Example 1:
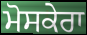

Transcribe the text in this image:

ਮੋਸਕੇਰਾ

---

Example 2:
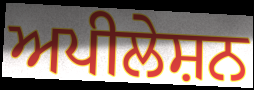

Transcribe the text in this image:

ਅਪੀਲੇਸ਼ਨ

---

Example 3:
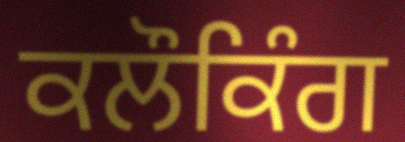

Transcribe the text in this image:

ਕਲੌਕਿੰਗ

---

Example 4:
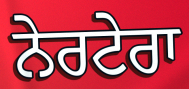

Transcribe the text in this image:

ਨੇਰਟੇਰਾ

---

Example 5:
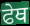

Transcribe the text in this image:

ਫੇਥ